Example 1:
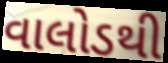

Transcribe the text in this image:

વાલોડથી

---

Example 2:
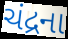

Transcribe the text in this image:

ચંદ્રના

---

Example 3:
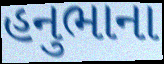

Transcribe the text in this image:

હનુભાના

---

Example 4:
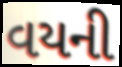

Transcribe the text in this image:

વયની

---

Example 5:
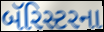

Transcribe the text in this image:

બૅરિસ્ટરના